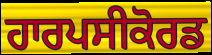
ਹਾਰਪਸੀਕੋਰਡ